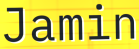
Jamin